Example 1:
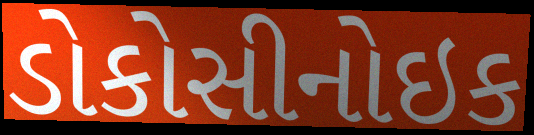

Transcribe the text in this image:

ડોકોસીનોઇક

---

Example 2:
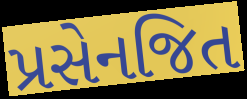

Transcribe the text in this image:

પ્રસેનજિત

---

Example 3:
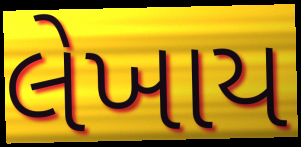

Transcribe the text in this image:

લેખાય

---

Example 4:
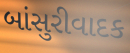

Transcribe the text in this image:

બાંસુરીવાદક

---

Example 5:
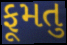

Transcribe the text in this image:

ફૂમતુ